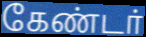
கேண்டர்